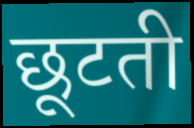
छूटती